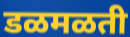
डळमळती